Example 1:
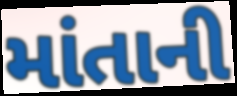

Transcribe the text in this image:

માંતાની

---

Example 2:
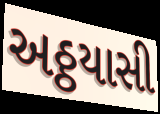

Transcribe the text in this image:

અઠ્ઠયાસી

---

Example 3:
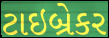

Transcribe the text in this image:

ટાઇબ્રેકર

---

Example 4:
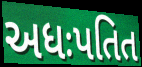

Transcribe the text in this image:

અધઃપતિત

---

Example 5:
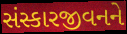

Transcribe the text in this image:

સંસ્કારજીવનને